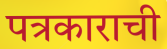
पत्रकाराची